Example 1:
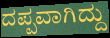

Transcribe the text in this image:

ದಪ್ಪವಾಗಿದ್ದು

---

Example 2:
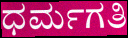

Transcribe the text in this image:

ಧರ್ಮಗತಿ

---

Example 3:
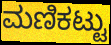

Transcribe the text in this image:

ಮಣಿಕಟ್ಟು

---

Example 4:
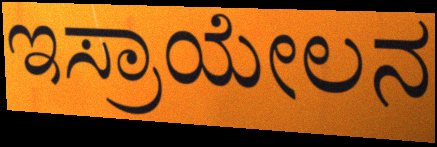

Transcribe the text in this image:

ಇಸ್ರಾಯೇಲನ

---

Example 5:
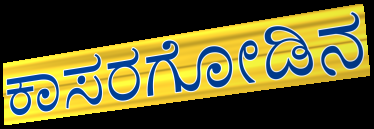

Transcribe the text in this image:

ಕಾಸರಗೋಡಿನ